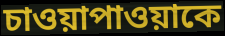
চাওয়াপাওয়াকে